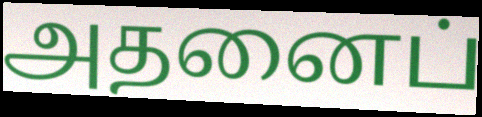
அதனைப்